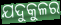
ଯଦୁକୁଳର